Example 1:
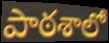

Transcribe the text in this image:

పాఠశాలో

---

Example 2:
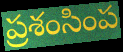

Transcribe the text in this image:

ప్రశంసింప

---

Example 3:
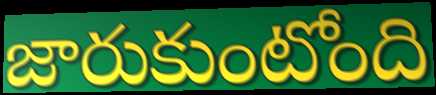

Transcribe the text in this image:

జారుకుంటోంది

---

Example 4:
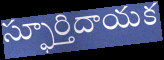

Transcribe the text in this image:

స్ఫూర్తిదాయక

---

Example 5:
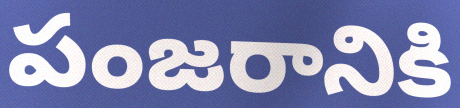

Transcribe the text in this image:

పంజరానికి